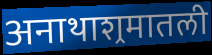
अनाथाश्रमातली